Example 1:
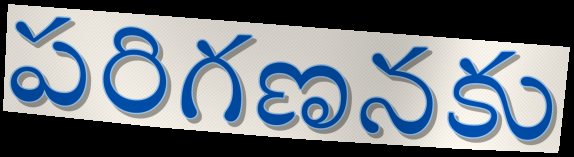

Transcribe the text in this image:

పరిగణనకు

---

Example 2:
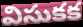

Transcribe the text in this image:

విసుకక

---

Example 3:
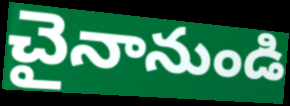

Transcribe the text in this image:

చైనానుండి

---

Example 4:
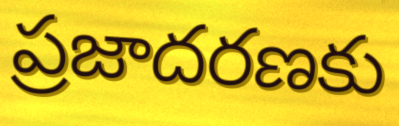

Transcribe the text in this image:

ప్రజాదరణకు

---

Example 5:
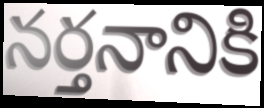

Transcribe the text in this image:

నర్తనానికి